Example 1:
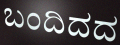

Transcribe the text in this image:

ಬಂದಿದದ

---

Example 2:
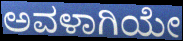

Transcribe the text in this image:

ಅವಳಾಗಿಯೇ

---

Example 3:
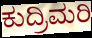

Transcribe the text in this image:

ಕುದ್ರಿಮರಿ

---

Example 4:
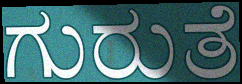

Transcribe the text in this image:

ಗುರುತೆ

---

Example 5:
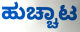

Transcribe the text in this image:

ಹುಚ್ಚಾಟ